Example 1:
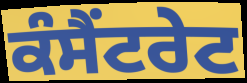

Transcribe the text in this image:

ਕੰਸੈਂਟਰੇਟ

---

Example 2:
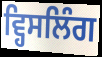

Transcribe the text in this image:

ਵ੍ਹਿਸਲਿੰਗ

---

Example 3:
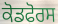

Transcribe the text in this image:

ਕੋਡਫੋਰਸ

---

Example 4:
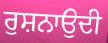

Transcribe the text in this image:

ਰੁਸ਼ਨਾਉਦੀ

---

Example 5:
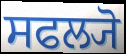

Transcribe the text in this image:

ਸਫਲ੍ਯੋ